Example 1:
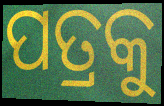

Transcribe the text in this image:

ପତ୍ରକୁ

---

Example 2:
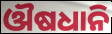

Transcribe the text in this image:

ଔଷଧାନି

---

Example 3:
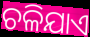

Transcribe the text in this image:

ଚଳିଯାଏ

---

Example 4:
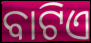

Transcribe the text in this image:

ବାଟିଏ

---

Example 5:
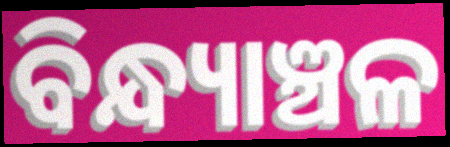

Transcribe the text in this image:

ବିନ୍ଧ୍ୟାଞ୍ଚଳ